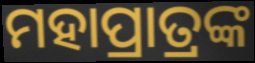
ମହାପ୍ରାତ୍ରଙ୍କ